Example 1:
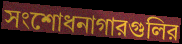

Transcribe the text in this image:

সংশোধনাগারগুলির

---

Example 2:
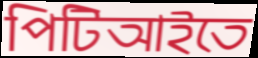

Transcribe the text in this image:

পিটিআইতে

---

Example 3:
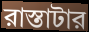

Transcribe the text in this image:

রাস্তাটার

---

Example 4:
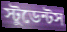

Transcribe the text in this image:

স্টুডেন্টস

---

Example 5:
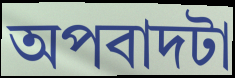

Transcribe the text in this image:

অপবাদটা